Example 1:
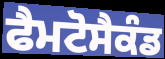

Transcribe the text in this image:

ਫੈਮਟੋਸੈਕੰਡ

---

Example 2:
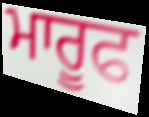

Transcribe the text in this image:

ਮਾਰੂਫ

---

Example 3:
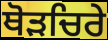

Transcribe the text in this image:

ਥੋੜਚਿਰੇ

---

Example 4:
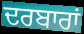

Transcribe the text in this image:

ਦਰਬਾਰਾਂ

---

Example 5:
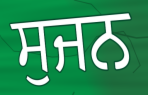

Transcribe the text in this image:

ਸੁਜਨ